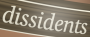
dissidents